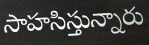
సాహసిస్తున్నారు